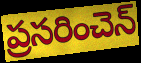
ప్రసరించెన్